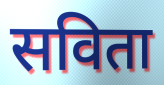
सविता